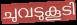
ചുവടുകൂടി